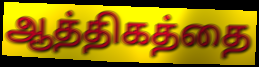
ஆத்திகத்தை